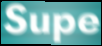
Supe